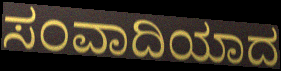
ಸಂವಾದಿಯಾದ